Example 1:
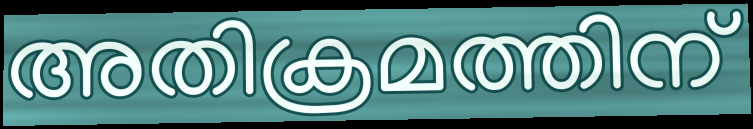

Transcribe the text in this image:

അതിക്രമത്തിന്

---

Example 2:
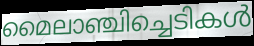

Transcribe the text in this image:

മൈലാഞ്ചിച്ചെടികൾ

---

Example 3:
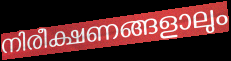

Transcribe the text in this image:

നിരീക്ഷണങ്ങളാലും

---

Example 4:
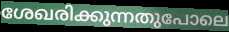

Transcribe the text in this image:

ശേഖരിക്കുന്നതുപോലെ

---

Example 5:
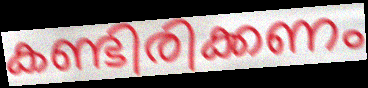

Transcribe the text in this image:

കണ്ടിരിക്കണം